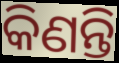
କିଣନ୍ତି